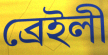
ব্রেইলী